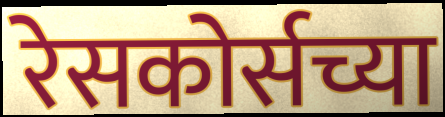
रेसकोर्सच्या